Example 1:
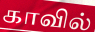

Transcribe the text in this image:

காவில்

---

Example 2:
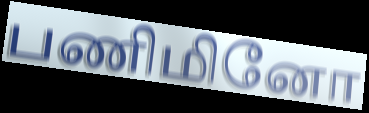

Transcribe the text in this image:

பணிமினோ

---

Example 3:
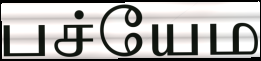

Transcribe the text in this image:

பச்யேம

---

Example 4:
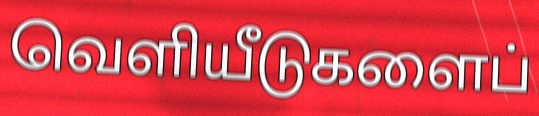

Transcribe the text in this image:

வெளியீடுகளைப்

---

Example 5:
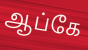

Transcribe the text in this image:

ஆப்கே